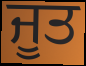
ਜੂਤ